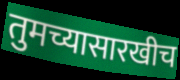
तुमच्यासारखीच